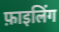
फ़ाइलिंग